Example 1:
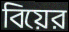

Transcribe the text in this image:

বিয়ের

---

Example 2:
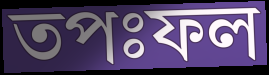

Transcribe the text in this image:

তপঃফল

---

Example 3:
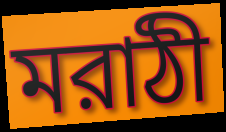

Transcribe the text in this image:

মরাঠী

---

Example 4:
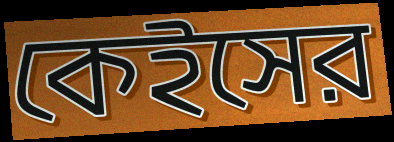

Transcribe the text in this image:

কেইসের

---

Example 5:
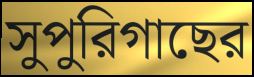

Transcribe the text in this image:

সুপুরিগাছের